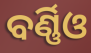
ବର୍ଣ୍ଣିଓ